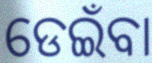
ଡେଇଁବା